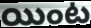
యింట